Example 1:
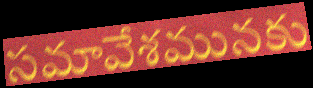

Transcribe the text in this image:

సమావేశమునకు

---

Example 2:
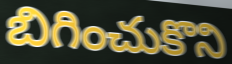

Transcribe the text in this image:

బిగించుకొని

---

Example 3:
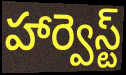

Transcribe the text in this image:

హార్వెస్ట్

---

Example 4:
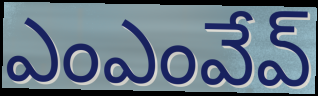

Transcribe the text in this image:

ఎంఎంవేవ్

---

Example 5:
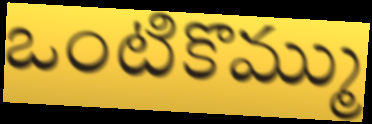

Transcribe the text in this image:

ఒంటికొమ్ము